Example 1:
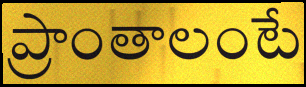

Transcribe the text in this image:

ప్రాంతాలంటే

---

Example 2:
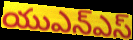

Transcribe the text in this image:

యుఎన్ఎస్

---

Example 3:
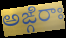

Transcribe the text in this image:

అఙ్గిరాః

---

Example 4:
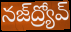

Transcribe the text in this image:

నజ్‌ద్ర్యోవ్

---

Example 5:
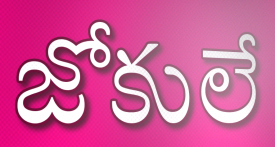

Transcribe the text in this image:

జోకులే